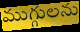
ముగ్గులను